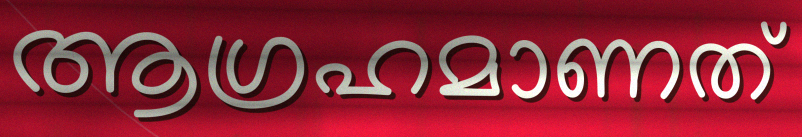
ആഗ്രഹമാണത്